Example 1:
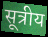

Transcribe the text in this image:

सूत्रीय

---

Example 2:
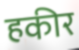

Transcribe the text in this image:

हकीर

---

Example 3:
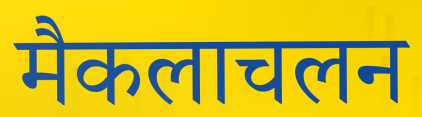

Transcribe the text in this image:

मैकलाचलन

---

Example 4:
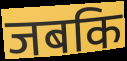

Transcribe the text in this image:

जबकि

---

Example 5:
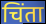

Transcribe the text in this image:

चिंता